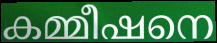
കമ്മീഷനെ